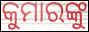
କୁମାରଙ୍କୁ